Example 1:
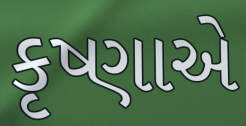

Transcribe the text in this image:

કૃષ્ણાએ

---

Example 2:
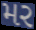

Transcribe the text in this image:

મર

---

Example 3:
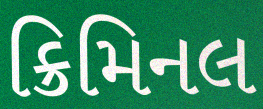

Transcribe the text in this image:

ક્રિમિનલ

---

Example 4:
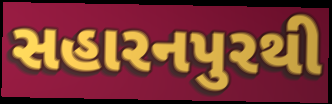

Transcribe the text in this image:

સહારનપુરથી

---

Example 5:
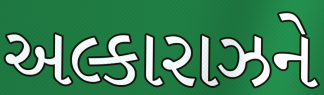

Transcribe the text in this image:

અલ્કારાઝને